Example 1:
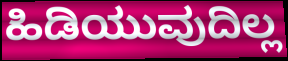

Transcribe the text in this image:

ಹಿಡಿಯುವುದಿಲ್ಲ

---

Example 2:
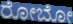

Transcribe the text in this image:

ರೋಬೋ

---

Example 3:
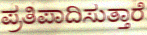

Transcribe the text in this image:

ಪ್ರತಿಪಾದಿಸುತ್ತಾರೆ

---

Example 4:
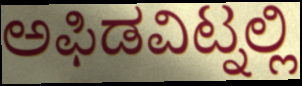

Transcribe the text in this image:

ಅಫಿಡವಿಟ್ನಲ್ಲಿ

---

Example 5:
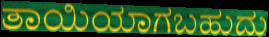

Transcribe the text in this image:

ತಾಯಿಯಾಗಬಹುದು